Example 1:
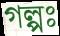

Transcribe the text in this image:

গল্পঃ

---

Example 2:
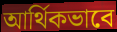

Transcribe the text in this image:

আর্থিকভাবে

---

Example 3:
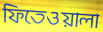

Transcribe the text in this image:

ফিতেওয়ালা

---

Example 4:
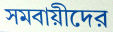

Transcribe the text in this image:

সমবায়ীদের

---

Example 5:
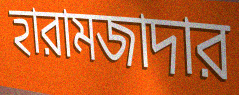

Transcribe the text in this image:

হারামজাদার